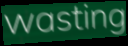
wasting